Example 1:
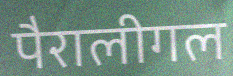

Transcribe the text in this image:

पैरालीगल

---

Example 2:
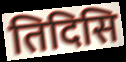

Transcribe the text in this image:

तिदिसि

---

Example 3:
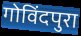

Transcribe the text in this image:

गोविंदपुरा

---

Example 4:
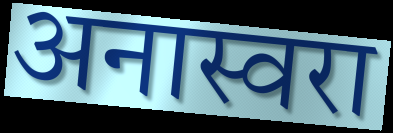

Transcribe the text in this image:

अनास्वरा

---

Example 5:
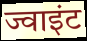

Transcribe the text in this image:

ज्वाइंट